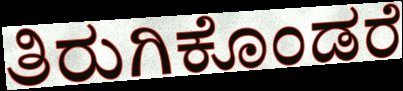
ತಿರುಗಿಕೊಂಡರೆ